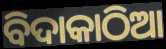
ବିଦାକାଠିଆ